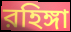
রহিঙ্গা